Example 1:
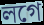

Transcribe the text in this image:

লগে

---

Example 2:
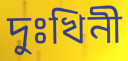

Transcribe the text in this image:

দুঃখিনী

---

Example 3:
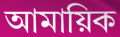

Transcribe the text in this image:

আমায়িক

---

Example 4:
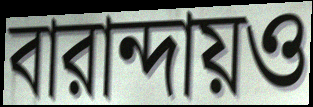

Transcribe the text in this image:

বারান্দায়ও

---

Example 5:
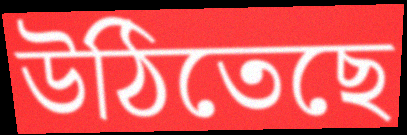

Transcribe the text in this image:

উঠিতেছে